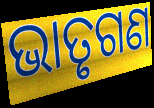
ଭାତୃଗଣ